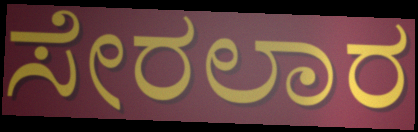
ಸೇರಲಾರ